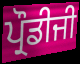
ਪ੍ਰੌਡੀਜੀ